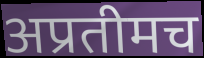
अप्रतीमच